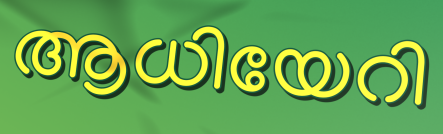
ആധിയേറി